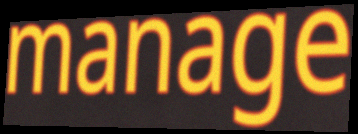
manage